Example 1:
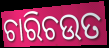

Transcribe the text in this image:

ଚାରିଚଉତ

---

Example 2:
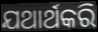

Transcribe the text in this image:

ଯଥାର୍ଥକରି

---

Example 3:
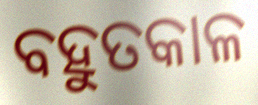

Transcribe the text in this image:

ବହୁତକାଳ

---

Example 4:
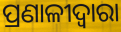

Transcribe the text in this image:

ପ୍ରଣାଳୀଦ୍ୱାରା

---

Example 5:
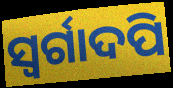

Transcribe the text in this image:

ସ୍ୱର୍ଗାଦପି